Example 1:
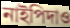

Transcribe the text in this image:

নাইপিদাও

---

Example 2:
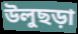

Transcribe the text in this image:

উলুছড়া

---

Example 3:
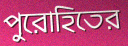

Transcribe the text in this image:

পুরোহিতের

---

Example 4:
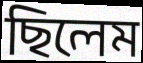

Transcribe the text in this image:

ছিলেম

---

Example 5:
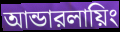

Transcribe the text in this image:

আন্ডারলায়িং